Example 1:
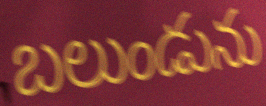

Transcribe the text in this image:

బలుండును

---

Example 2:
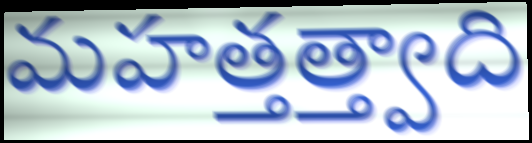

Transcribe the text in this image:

మహత్తత్త్వాది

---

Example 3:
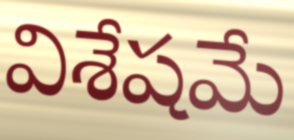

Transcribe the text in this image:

విశేషమే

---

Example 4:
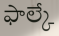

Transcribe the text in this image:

ఫాల్కే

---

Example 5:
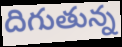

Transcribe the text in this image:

దిగుతున్న